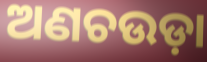
ଅଣଚଉଡ଼ା